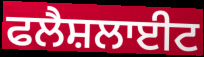
ਫਲੈਸ਼ਲਾਈਟ